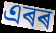
এৰৰ